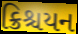
ક્રિશ્ચયન